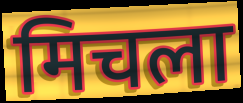
मिचला